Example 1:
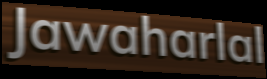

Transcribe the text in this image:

Jawaharlal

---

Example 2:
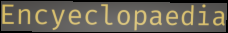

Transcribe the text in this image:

Encyeclopaedia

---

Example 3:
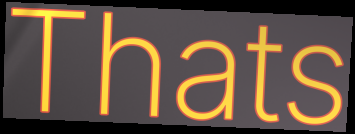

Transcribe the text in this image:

Thats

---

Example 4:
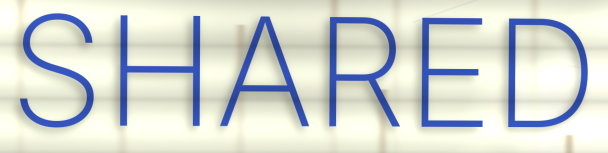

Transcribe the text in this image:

SHARED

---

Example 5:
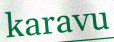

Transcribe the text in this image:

karavu